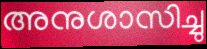
അനുശാസിച്ചു